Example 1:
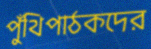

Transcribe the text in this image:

পুঁথিপাঠকদের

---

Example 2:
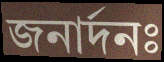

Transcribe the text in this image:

জনার্দনঃ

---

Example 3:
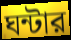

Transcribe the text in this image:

ঘন্টার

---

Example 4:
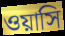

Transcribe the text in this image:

ওয়াসি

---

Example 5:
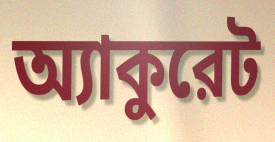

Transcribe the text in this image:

অ্যাকুরেট